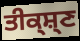
ਤੀਕ੍ਸ਼੍ਣ